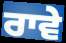
ਰਾਵੇ